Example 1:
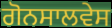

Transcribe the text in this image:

ਗੋਨਸਾਲਵੇਸ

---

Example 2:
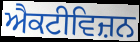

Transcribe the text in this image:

ਐਕਟੀਵਿਜ਼ਨ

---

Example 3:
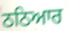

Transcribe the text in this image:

ਠਠਿਆਰ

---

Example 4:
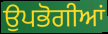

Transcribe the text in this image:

ਉਪਭੋਗੀਆਂ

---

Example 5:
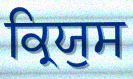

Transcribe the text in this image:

ਕ੍ਰਿਯੁਸ